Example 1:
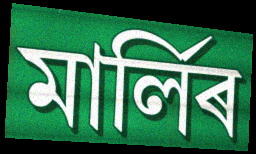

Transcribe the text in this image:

মাৰ্লিৰ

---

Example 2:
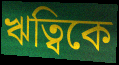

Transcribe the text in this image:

ঋত্বিকে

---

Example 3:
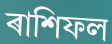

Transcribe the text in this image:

ৰাশিফল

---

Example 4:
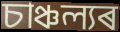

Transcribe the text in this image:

চাঞ্চল্যৰ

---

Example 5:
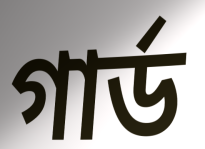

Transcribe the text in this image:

গাৰ্ড